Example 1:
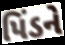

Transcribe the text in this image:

પિંડને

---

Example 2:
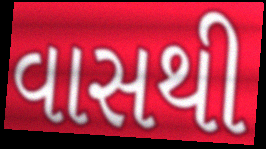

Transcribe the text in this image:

વાસથી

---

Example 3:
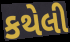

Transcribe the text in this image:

કથેલી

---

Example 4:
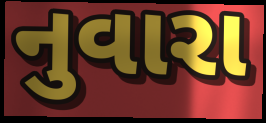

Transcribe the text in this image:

નુવારા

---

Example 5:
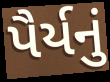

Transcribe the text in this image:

પૈર્યનું